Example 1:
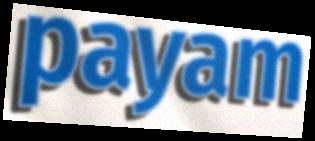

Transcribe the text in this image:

payam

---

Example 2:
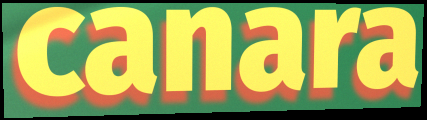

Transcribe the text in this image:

canara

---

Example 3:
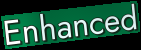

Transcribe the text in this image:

Enhanced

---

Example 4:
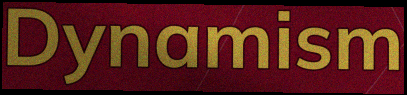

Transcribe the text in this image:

Dynamism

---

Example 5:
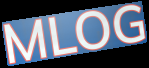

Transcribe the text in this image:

MLOG